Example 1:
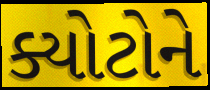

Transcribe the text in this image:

ક્યોટોને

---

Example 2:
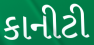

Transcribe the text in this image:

કાનીટી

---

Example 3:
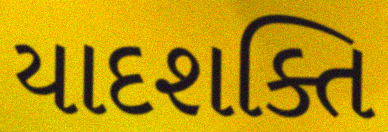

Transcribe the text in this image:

યાદશક્તિ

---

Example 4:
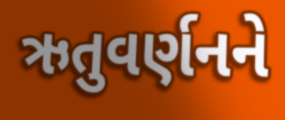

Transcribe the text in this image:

ઋતુવર્ણનને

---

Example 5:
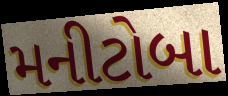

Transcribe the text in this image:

મનીટોબા